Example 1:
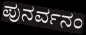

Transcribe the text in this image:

ಪುನರ್ವನಂ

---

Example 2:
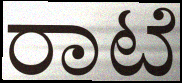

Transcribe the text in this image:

ರಾಟೆ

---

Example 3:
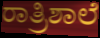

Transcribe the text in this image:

ರಾತ್ರಿಶಾಲೆ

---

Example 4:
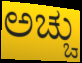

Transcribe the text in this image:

ಅಚ್ಚು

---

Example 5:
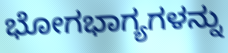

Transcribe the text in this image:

ಭೋಗಭಾಗ್ಯಗಳನ್ನು